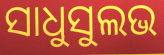
ସାଧୁସୁଲଭ